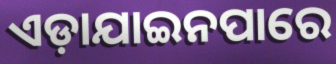
ଏଡ଼ାଯାଇନପାରେ